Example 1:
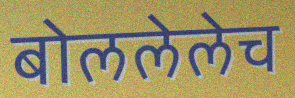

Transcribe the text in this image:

बोललेलेच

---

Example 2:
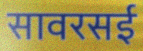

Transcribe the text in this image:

सावरसई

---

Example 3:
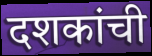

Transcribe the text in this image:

दशकांची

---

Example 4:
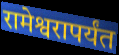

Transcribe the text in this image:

रामेश्वरापर्यंत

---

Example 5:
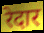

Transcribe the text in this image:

रेदार